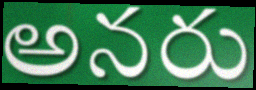
అనరు